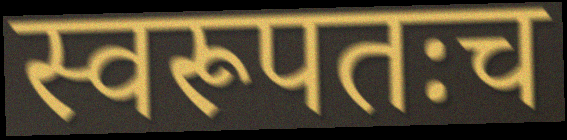
स्वरूपतःच